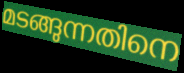
മടങ്ങുന്നതിനെ